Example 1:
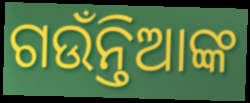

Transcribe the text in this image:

ଗଉଁନ୍ତିଆଙ୍କ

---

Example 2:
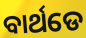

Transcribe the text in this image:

ବାର୍ଥଡେ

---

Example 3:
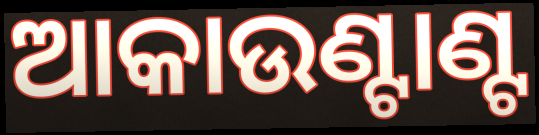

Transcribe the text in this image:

ଆକାଉଣ୍ଟାଣ୍ଟ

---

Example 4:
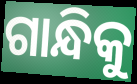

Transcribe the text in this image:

ଗାନ୍ଧିକୁ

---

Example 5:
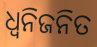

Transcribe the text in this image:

ଧ୍ଵନିଜନିତ